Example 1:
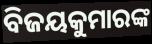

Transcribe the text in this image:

ବିଜୟକୁମାରଙ୍କ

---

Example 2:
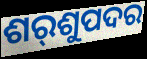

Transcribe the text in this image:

ଶର୍‌ଶୁପଦର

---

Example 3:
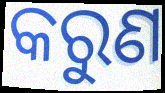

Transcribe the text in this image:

କରୁଣ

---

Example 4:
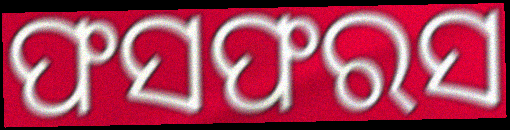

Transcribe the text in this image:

ଫସଫରସ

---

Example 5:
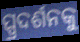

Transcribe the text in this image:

ପ୍ପ୍ରଦର୍ଶନକୁ